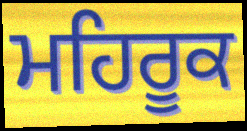
ਮਹਿਰੂਕ